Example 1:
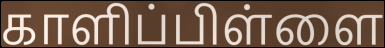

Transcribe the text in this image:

காளிப்பிள்ளை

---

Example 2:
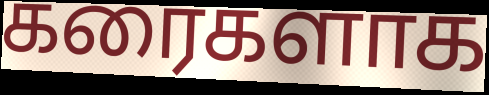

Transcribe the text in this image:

கரைகளாக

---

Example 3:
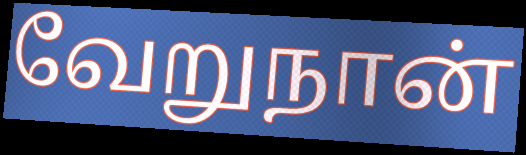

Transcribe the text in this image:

வேறுநான்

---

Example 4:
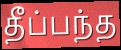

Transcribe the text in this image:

தீப்பந்த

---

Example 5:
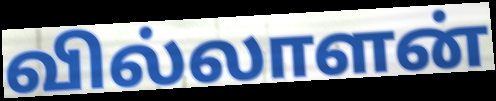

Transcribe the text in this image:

வில்லாளன்